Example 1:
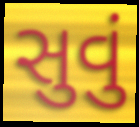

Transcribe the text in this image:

સુવું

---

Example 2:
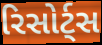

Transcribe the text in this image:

રિસોર્ટ્સ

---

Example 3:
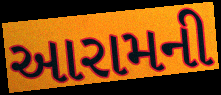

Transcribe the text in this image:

આરામની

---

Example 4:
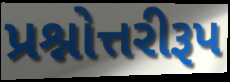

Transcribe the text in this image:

પ્રશ્નોત્તરીરૂપ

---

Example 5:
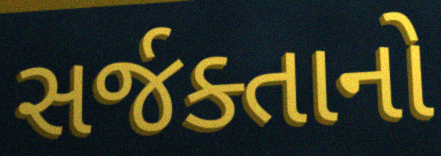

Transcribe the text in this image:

સર્જક્તાનો